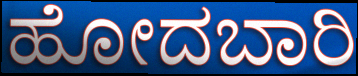
ಹೋದಬಾರಿ